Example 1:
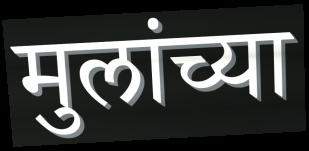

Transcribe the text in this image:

मुलांच्या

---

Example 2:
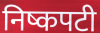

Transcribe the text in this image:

निष्कपटी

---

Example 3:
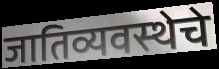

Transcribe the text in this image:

जातिव्यवस्थेचे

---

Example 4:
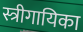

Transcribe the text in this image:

स्त्रीगायिका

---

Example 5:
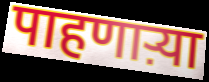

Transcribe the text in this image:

पाहणाऱ्‍या